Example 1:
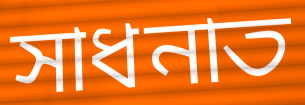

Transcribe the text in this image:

সাধনাত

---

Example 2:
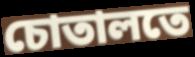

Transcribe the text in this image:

চোতালতে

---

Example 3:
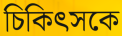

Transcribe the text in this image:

চিকিৎসকে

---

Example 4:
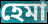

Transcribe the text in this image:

হেমা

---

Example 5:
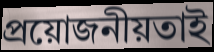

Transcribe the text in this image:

প্ৰয়োজনীয়তাই